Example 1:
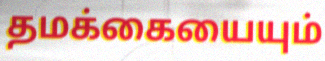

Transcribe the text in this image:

தமக்கையையும்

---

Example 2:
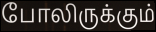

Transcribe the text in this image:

போலிருக்கும்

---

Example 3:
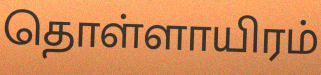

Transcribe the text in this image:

தொள்ளாயிரம்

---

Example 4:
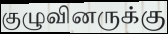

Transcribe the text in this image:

குழுவினருக்கு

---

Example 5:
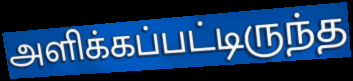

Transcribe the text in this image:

அளிக்கப்பட்டிருந்த